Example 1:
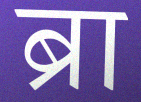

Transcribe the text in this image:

ब्रा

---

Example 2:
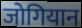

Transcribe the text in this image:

जोगियान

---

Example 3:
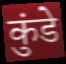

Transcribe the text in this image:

कुंडे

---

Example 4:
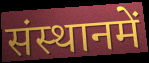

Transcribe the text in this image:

संस्थानमें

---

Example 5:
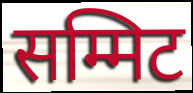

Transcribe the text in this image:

सम्मिट